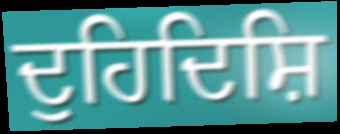
ਦੁਹਿਦਿਸ਼ਿ